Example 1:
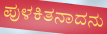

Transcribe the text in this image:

ಪುಳಕಿತನಾದನು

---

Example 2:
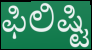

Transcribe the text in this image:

ಫಿಲಿಷ್ಟಿ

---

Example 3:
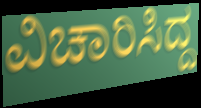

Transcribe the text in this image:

ವಿಚಾರಿಸಿದ್ದ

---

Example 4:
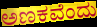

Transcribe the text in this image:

ಅಣಕವೆಂದು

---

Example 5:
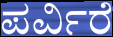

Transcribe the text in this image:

ಪರ್ವಿರೆ